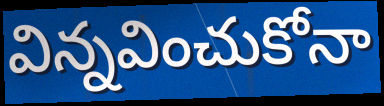
విన్నవించుకోనా